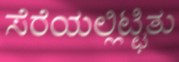
ಸೆರೆಯಲ್ಲಿಟ್ಟಿತು